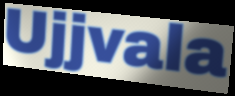
Ujjvala